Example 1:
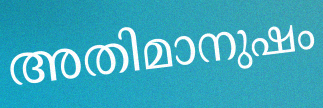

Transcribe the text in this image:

അതിമാനുഷം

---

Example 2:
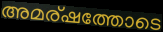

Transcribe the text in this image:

അമര്ഷത്തോടെ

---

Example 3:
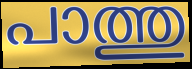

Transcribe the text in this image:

പാത്തു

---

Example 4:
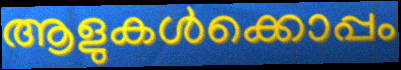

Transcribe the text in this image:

ആളുകൾക്കൊപ്പം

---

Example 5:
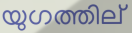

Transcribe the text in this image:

യുഗത്തില്